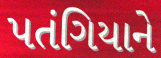
પતંગિયાને